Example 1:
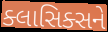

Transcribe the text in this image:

ક્લાસિક્સને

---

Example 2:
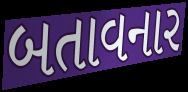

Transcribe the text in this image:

બતાવનાર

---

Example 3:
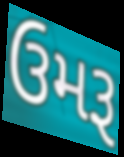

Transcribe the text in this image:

ઉમરૂ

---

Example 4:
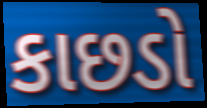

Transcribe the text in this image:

કાછડો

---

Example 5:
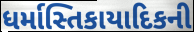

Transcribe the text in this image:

ધર્માસ્તિકાયાદિકની